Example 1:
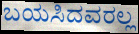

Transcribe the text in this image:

ಬಯಸಿದವರಲ್ಲ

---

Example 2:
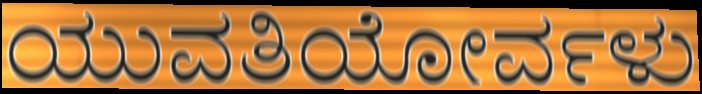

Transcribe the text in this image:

ಯುವತಿಯೋರ್ವಳು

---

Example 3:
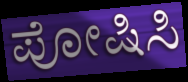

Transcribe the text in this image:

ಪೋಷಿಸಿ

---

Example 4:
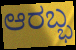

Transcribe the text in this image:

ಆರಬ್ಭ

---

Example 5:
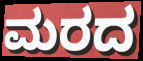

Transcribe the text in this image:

ಮರದ